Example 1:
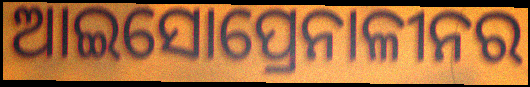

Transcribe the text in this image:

ଆଇସୋପ୍ରେନାଳୀନର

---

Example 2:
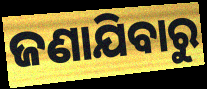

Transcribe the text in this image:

ଜଣାଯିବାରୁ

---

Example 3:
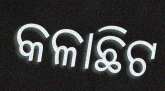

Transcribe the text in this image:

କଳାଛିଟ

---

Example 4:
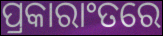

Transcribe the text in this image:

ପ୍ରକାରାଂତରେ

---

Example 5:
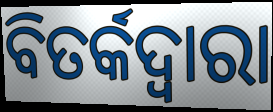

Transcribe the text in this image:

ବିତର୍କଦ୍ୱାରା